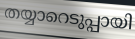
തയ്യാറെടുപ്പായി